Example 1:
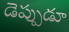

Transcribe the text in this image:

డెప్పుడూ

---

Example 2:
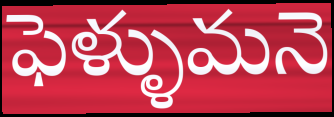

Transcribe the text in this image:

ఫెళ్ళుమనె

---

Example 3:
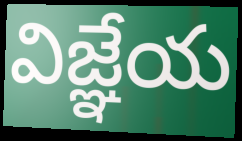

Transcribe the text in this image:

విజ్ఞేయ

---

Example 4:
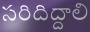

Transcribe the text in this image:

సరిదిద్దాలి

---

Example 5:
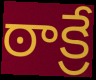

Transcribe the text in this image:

ఠాక్రే